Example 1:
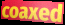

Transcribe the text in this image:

coaxed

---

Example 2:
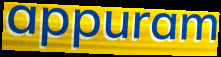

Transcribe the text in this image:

appuram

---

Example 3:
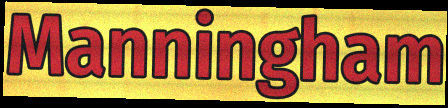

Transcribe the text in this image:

Manningham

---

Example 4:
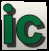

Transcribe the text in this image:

ic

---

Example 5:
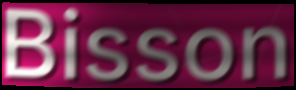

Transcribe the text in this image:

Bisson